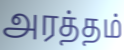
அரத்தம்